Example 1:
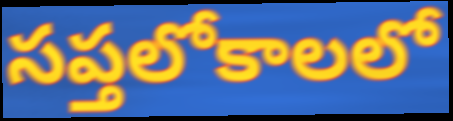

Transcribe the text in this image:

సప్తలోకాలలో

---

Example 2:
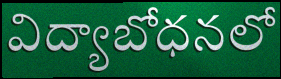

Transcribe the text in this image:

విద్యాబోధనలో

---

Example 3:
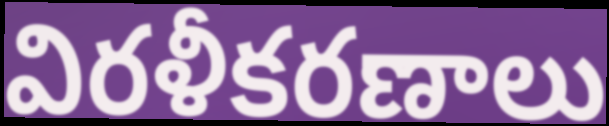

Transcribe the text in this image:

విరళీకరణాలు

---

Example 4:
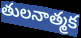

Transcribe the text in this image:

తులనాత్మక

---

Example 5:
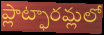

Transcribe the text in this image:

ప్లాట్ఫారమ్లలో